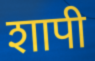
शापी